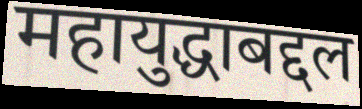
महायुद्धाबद्दल